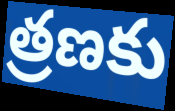
త్రణకు